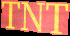
TNT